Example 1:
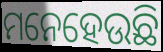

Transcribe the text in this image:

ମନେହେଉଛି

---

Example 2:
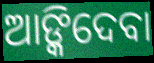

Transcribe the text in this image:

ଆଙ୍କିଦେବା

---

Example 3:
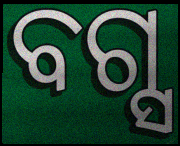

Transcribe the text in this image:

ବଗ୍ସ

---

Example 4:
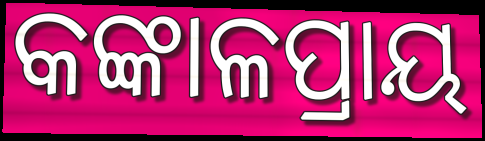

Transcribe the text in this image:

କଙ୍କାଳପ୍ରାୟ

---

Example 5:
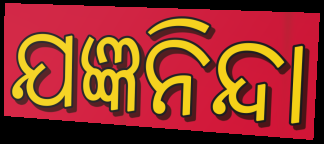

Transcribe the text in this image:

ଯଜ୍ଞନିନ୍ଦା